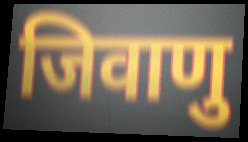
जिवाणु